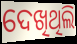
ଦେଖିଥିଲି